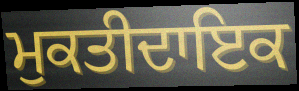
ਮੁਕਤੀਦਾਇਕ